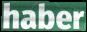
haber